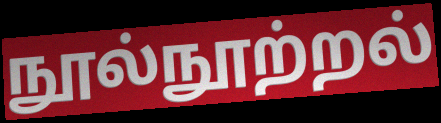
நூல்நூற்றல்